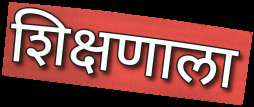
शिक्षणाला